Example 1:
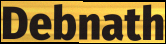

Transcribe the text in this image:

Debnath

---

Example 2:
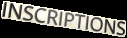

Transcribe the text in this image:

INSCRIPTIONS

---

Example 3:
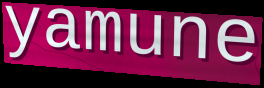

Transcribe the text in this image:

yamune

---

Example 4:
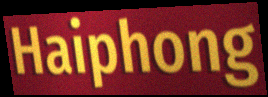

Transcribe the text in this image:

Haiphong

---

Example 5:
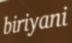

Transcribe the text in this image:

biriyani